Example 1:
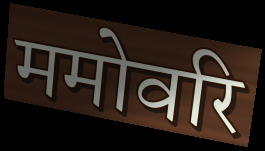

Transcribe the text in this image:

ममोवरि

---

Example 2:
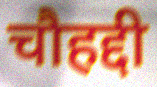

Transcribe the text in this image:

चौहद्दी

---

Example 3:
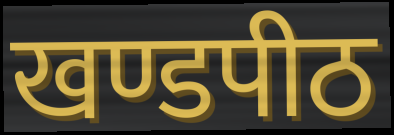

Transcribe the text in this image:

खण्डपीठ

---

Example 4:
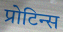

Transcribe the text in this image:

प्रोटिन्स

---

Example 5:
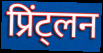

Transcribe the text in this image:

प्रिंट्लन